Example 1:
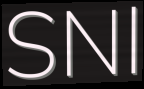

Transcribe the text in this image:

SNl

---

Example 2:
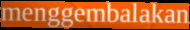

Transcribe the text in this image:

menggembalakan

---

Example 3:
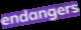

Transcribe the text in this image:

endangers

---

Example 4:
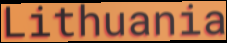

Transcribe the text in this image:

Lithuania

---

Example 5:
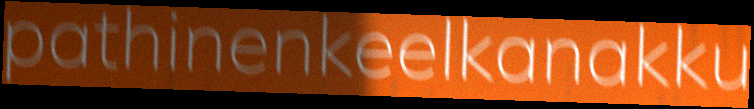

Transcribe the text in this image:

pathinenkeelkanakku